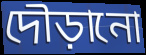
দৌড়ানো